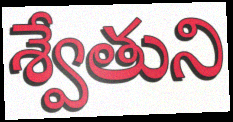
శ్వేతుని